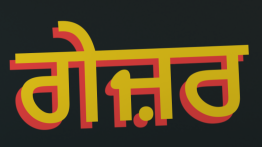
ਗੇਜ਼ਰ